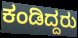
ಕಂಡಿದ್ದರು